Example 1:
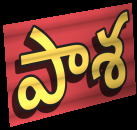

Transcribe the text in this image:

పాశ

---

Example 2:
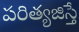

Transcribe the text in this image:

పరిత్యజిస్తే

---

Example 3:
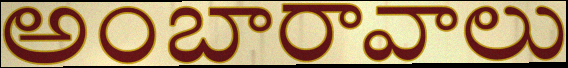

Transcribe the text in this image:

అంబారావాలు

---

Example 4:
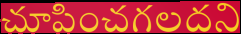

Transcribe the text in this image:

చూపించగలదని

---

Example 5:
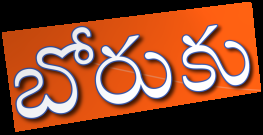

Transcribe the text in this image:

బోరుకు